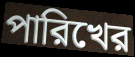
পারিখের